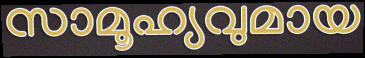
സാമൂഹ്യവുമായ